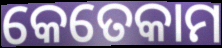
କେତେକାମ